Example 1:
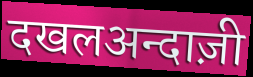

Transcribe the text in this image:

दखलअन्दाज़ी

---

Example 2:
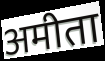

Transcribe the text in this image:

अमीता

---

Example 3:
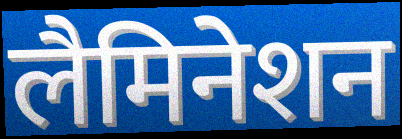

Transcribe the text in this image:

लैमिनेशन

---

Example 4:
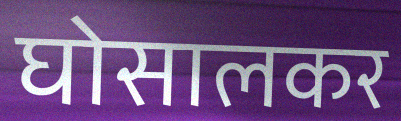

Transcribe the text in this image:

घोसालकर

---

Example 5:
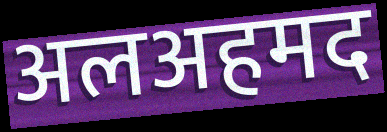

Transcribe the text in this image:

अलअहमद